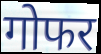
गोफर